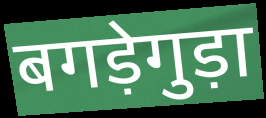
बगड़ेगुड़ा